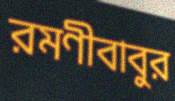
রমণীবাবুর